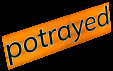
potrayed